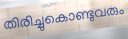
തിരിച്ചുകൊണ്ടുവരും